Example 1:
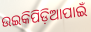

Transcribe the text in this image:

ଉଇକିପିଡ଼ିଆପାଇଁ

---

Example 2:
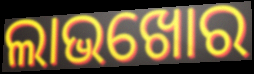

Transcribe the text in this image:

ଲାଭଖୋର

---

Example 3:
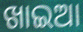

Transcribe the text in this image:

ଖାଇଆ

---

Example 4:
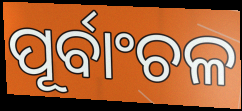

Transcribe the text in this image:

ପୂର୍ବାଂଚଳ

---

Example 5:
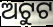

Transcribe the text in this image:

ଅଟୁଟ